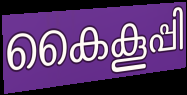
കൈകൂപ്പി